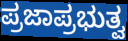
ಪ್ರಜಾಪ್ರಭುತ್ವ